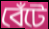
বেঁটে